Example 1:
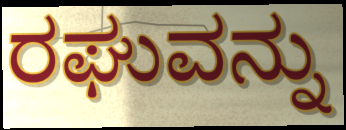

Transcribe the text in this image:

ರಘುವನ್ನು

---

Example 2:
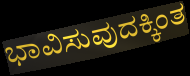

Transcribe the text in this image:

ಭಾವಿಸುವುದಕ್ಕಿಂತ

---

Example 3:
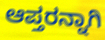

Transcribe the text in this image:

ಆಪ್ತರನ್ನಾಗಿ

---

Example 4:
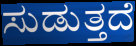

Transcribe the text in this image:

ಸುಡುತ್ತದೆ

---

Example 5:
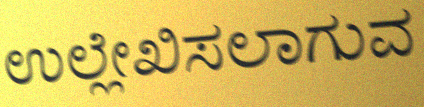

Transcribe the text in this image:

ಉಲ್ಲೇಖಿಸಲಾಗುವ